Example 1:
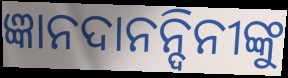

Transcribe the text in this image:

ଜ୍ଞାନଦାନନ୍ଦିନୀଙ୍କୁ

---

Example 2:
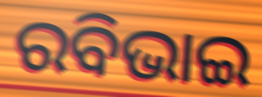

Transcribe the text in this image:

ରବିଭାଇ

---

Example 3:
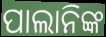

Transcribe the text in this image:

ପାଲାନିଙ୍କ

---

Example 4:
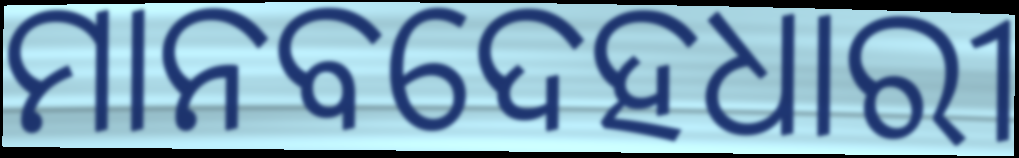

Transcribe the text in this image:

ମାନବଦେହଧାରୀ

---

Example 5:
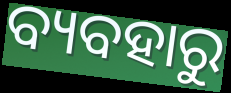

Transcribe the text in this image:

ବ୍ୟବହାରୁ